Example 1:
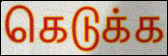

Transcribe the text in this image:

கெடுக்க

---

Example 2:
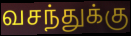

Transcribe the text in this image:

வசந்துக்கு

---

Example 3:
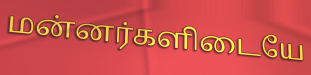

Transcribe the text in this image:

மன்னர்களிடையே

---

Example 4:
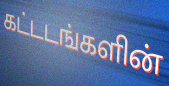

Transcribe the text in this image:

கட்டடங்களின்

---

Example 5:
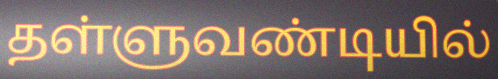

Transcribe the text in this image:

தள்ளுவண்டியில்